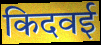
किदवई